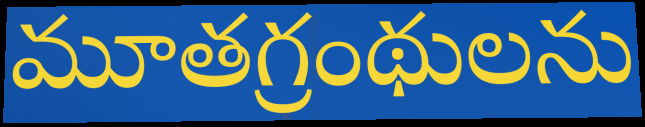
మూతగ్రంథులను